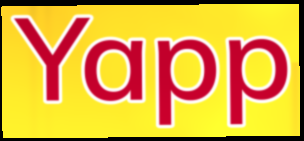
Yapp